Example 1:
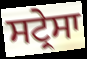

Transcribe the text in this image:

ਸਟ੍ਰੇਸਾ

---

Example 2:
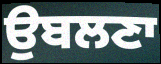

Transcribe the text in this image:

ਉਬਲਣਾ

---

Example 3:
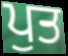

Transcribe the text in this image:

ਪੁਤ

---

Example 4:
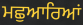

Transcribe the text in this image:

ਮਛੁਆਰਿਆਂ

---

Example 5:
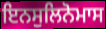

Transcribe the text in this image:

ਇਨਸੁਲਿਨੋਮਾਸ